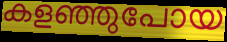
കളഞ്ഞുപോയ